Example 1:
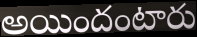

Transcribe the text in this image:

అయిందంటారు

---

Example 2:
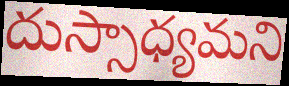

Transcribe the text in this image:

దుస్సాధ్యమని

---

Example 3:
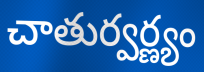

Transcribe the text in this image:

చాతుర్వర్ణ్యం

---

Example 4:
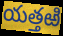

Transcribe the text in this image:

యత్తఱి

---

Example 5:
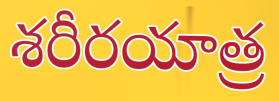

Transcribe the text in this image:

శరీరయాత్ర